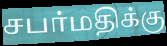
சபர்மதிக்கு